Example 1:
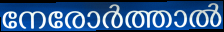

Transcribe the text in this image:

നേരോർത്താൽ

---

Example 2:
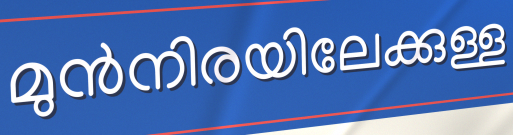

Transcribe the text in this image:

മുൻനിരയിലേക്കുള്ള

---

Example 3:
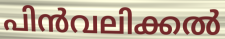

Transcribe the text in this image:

പിൻവലിക്കൽ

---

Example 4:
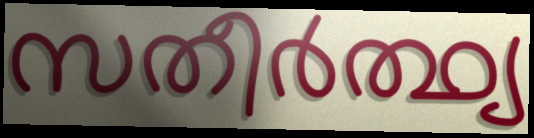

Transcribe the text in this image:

സതീർത്ഥ്യ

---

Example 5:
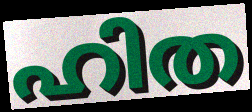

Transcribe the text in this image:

ഹിത